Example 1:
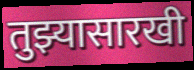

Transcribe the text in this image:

तुझ्यासारखी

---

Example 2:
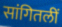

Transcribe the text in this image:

सांगितलीं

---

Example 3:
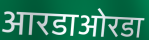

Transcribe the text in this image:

आरडाओरडा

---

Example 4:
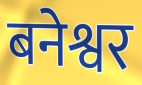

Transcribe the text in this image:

बनेश्वर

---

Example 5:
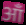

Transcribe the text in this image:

आँ